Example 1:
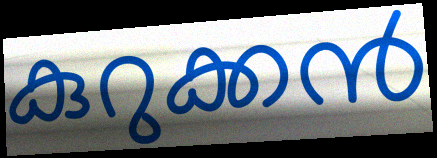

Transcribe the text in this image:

കുറുക്കൻ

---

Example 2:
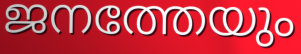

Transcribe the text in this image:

ജനത്തേയും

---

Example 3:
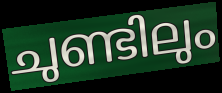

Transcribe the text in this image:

ചുണ്ടിലും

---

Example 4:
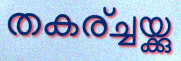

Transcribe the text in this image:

തകര്ച്ചയ്ക്കു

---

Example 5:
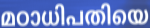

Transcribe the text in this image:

മഠാധിപതിയെ